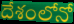
దేశంలోనో